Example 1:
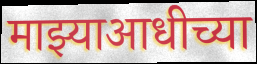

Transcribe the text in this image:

माझ्याआधीच्या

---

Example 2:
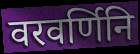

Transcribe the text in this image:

वरवर्णिनि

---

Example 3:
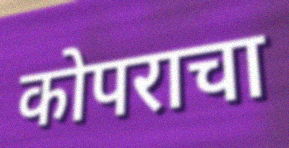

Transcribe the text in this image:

कोपराचा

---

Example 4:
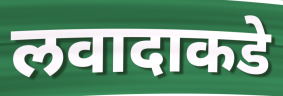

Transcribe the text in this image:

लवादाकडे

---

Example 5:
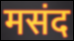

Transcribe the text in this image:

मसंद